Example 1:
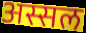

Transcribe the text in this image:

अस्सल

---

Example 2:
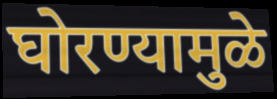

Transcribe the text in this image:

घोरण्यामुळे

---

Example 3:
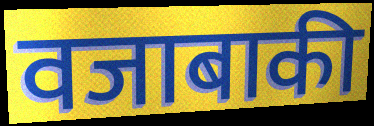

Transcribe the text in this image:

वजाबाकी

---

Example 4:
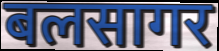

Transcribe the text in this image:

बलसागर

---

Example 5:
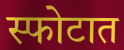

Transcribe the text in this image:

स्फोटात